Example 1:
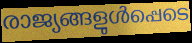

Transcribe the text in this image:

രാജ്യങ്ങളുൾപ്പെടെ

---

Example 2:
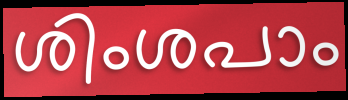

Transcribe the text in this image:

ശിംശപാം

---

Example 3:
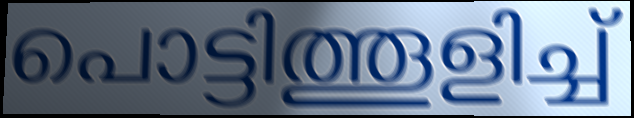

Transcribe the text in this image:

പൊട്ടിത്തൂളിച്ച്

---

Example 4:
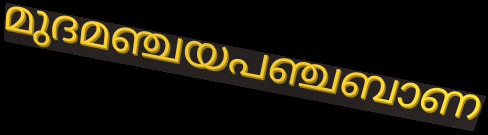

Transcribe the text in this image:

മുദമഞ്ചയപഞ്ചബാണ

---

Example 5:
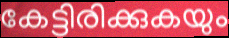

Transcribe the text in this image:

കേട്ടിരിക്കുകയും